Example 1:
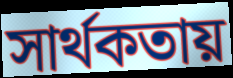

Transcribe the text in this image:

সার্থকতায়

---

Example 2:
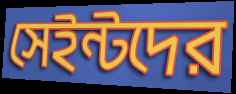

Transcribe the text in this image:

সেইন্টদের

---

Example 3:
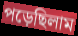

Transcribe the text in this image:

পড়েছিলাম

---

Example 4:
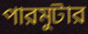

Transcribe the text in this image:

পারমুটার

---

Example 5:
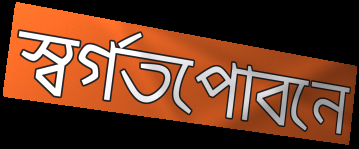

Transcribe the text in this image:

স্বর্গতপোবনে